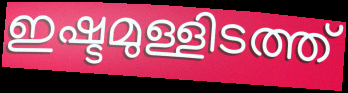
ഇഷ്ടമുള്ളിടത്ത്